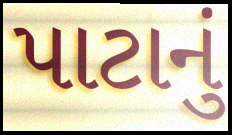
પાટાનું